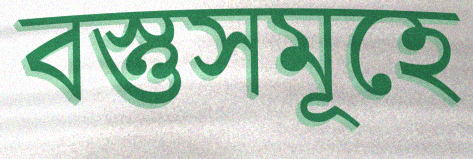
বস্তুসমূহে